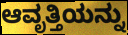
ಆವೃತ್ತಿಯನ್ನು